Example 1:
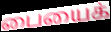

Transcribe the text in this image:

பையைக்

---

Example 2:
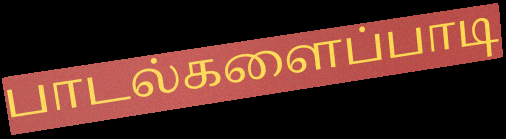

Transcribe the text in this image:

பாடல்களைப்பாடி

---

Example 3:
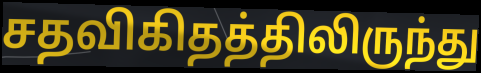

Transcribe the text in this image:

சதவிகிதத்திலிருந்து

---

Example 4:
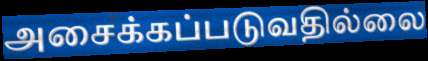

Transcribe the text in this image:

அசைக்கப்படுவதில்லை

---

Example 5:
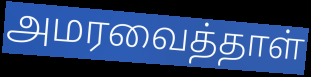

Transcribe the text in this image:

அமரவைத்தாள்